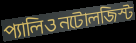
প্যালিওনটোলজিস্ট